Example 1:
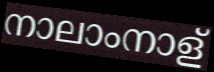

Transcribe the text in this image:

നാലാംനാള്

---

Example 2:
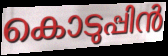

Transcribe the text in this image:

കൊടുപ്പിൻ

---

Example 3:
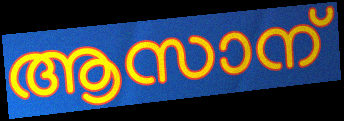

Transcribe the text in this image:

ആസാന്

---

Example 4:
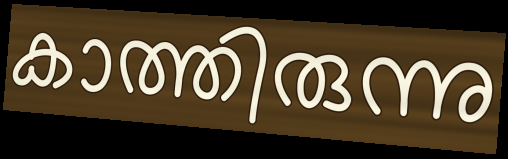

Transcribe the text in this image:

കാത്തിരുന്നു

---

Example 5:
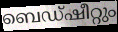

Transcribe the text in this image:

ബെഡ്ഷീറ്റും